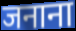
जनाना